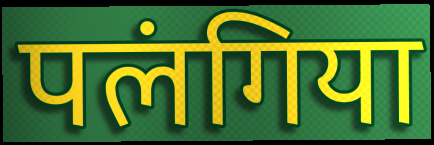
पलंगिया